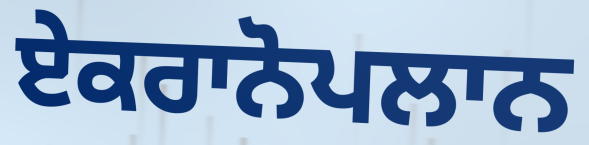
ਏਕਰਾਨੋਪਲਾਨ